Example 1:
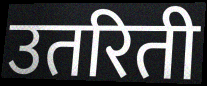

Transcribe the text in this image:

उतरिती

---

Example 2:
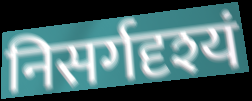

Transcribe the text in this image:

निसर्गदृश्यं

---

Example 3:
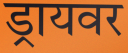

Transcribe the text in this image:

ड्रायवर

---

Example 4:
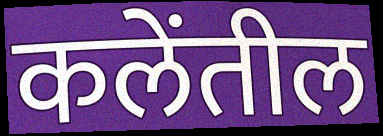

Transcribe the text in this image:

कलेंतील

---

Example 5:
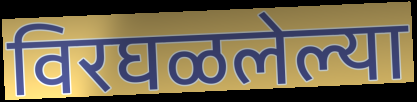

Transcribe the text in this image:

विरघळलेल्या